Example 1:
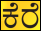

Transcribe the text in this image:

ಕೆರೆ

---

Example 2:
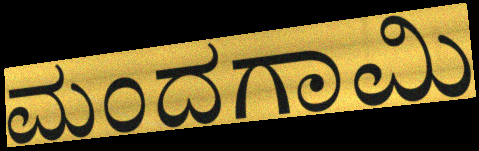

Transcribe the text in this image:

ಮಂದಗಾಮಿ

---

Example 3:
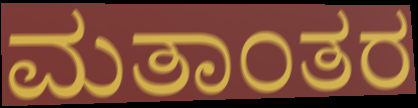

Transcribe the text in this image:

ಮತಾಂತರ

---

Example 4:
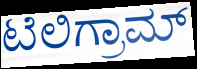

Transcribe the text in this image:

ಟೆಲಿಗ್ರಾಮ್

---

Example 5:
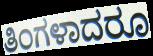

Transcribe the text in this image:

ತಿಂಗಳಾದರೂ